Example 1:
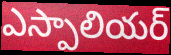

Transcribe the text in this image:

ఎస్పాలియర్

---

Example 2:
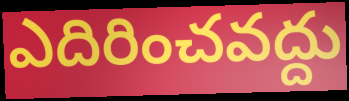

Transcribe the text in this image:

ఎదిరించవద్దు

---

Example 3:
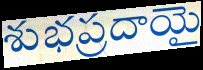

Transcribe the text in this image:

శుభప్రదాయై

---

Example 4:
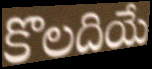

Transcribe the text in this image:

కొలదియే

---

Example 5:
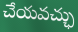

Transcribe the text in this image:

చేయవచ్ఛు